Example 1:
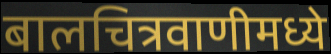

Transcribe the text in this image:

बालचित्रवाणीमध्ये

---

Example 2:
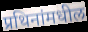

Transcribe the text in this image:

प्रथिनांमधील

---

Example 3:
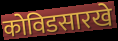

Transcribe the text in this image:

कोविडसारखे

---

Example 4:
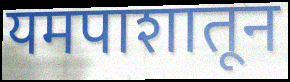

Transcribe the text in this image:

यमपाशातून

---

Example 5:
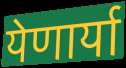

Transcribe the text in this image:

येणार्या